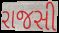
રાજસી